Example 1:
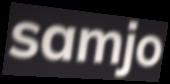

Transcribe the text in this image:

samjo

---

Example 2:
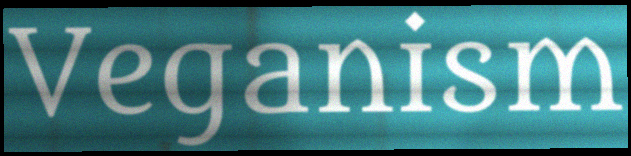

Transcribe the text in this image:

Veganism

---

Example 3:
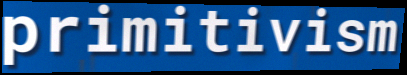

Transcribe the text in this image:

primitivism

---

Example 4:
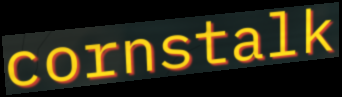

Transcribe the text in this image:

cornstalk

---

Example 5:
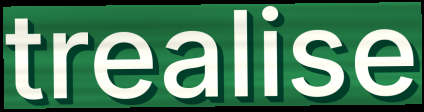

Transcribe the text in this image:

trealise